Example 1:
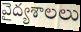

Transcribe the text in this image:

వైద్యశాలలు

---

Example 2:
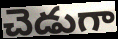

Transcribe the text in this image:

చెడుగా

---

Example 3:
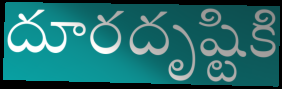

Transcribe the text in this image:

దూరదృష్టికి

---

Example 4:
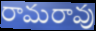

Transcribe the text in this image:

రామరావు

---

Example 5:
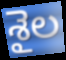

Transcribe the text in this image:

శైల